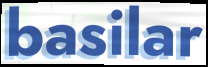
basilar